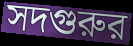
সদগুরুর